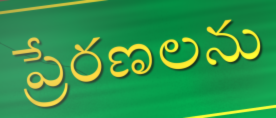
ప్రేరణలను